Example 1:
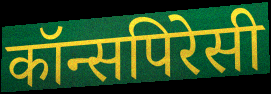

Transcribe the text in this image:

कॉन्सपिरेसी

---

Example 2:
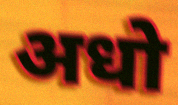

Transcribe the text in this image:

अधो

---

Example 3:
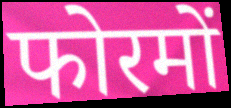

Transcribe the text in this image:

फोरमों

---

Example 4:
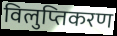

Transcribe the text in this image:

विलुप्तिकरण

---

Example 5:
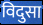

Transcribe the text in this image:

विदुसा